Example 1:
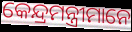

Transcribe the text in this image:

କେନ୍ଦ୍ରମନ୍ତ୍ରୀମାନେ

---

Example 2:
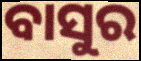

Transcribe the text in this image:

ବାସୁର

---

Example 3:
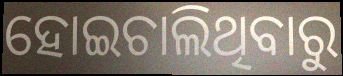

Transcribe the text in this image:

ହୋଇଚାଲିଥିବାରୁ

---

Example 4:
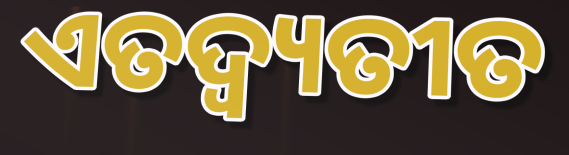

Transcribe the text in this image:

ଏତଦ୍ବ୍ୟତୀତ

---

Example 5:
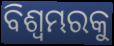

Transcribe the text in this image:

ବିଶ୍ୱମ୍ଭରକୁ